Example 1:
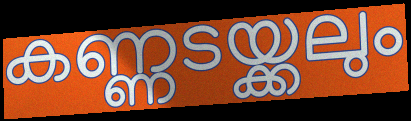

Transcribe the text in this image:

കണ്ണടയ്ക്കലും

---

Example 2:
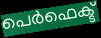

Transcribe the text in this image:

പെർഫെക്ട്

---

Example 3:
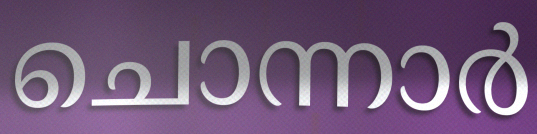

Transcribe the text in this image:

ചൊന്നാർ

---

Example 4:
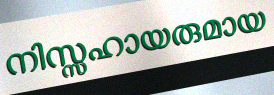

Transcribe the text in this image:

നിസ്സഹായരുമായ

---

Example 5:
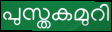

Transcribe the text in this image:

പുസ്തകമുറി